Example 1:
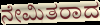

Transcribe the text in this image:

ನೇಮಿತರಾದ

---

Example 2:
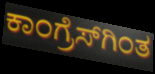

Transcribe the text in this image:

ಕಾಂಗ್ರೆಸ್‌ಗಿಂತ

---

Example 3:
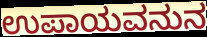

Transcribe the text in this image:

ಉಪಾಯವನುನ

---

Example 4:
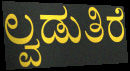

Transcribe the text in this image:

ಲ್ವಡುತಿರೆ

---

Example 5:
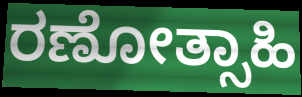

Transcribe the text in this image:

ರಣೋತ್ಸಾಹಿ